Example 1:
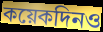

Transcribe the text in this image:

কয়েকদিনও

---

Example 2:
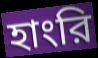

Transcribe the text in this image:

হাংরি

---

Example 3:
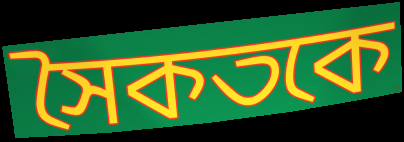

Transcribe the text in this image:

সৈকতকে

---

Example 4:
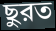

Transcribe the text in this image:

ছুরত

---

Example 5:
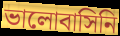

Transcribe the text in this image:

ভালোবাসিনি